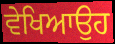
ਵੇਖਿਆਉਹ